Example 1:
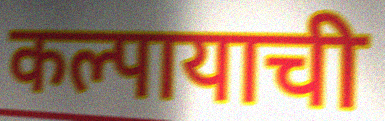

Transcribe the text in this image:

कल्पायाची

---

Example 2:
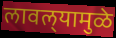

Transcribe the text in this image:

लावल्यामुळे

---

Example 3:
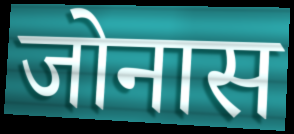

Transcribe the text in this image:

जोनास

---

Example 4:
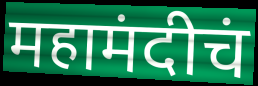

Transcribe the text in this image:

महामंदीचं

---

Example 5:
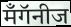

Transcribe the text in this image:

मँगॅनीज